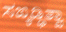
ಸಙ್ಕಡ್ಢಿತ್ವಾ